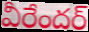
వీరేందర్